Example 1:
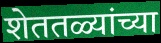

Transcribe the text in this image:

शेततळ्यांच्या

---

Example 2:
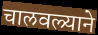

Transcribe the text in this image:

चालवल्याने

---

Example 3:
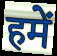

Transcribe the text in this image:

हमें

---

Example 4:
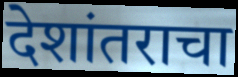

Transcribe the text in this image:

देशांतराचा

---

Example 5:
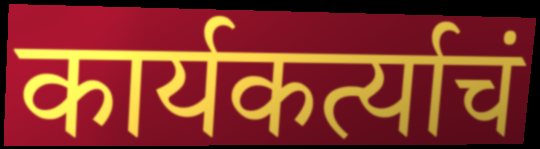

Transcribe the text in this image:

कार्यकर्त्याचं